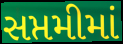
સપ્તમીમાં